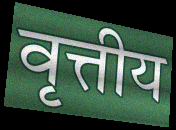
वृत्तीय